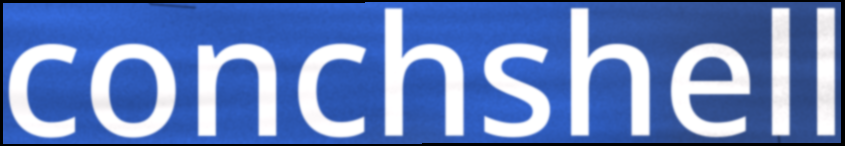
conchshell